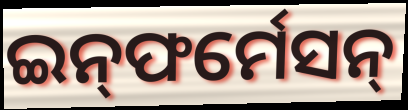
ଇନ୍‍ଫର୍ମେସନ୍